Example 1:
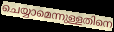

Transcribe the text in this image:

ചെയ്യാമെന്നുള്ളതിനെ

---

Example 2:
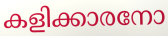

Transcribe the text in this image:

കളിക്കാരനോ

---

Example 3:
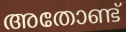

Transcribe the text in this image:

അതോണ്ട്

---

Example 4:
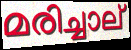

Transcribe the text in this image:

മരിച്ചാല്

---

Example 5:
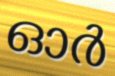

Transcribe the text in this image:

ഓർ